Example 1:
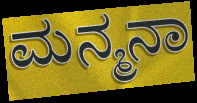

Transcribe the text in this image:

ಮನ್ಮನಾ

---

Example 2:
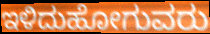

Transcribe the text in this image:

ಇಳಿದುಹೋಗುವರು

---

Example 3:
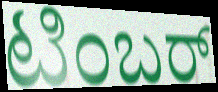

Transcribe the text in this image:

ಟಿಂಬರ್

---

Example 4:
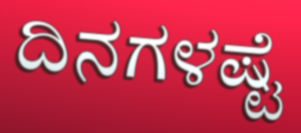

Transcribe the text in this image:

ದಿನಗಳಷ್ಟೆ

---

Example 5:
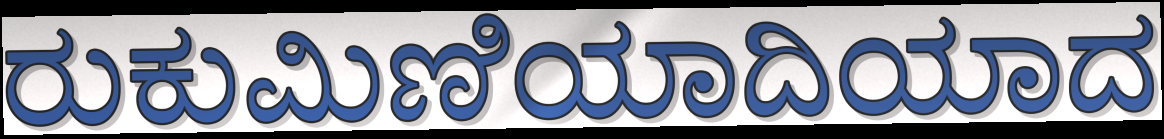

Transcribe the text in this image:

ರುಕುಮಿಣಿಯಾದಿಯಾದ